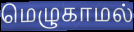
மெழுகாமல்